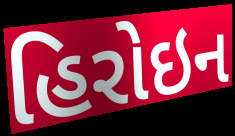
હિરોઇન